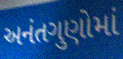
અનંતગુણોમાં